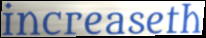
increaseth